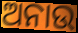
ଅନାଉ